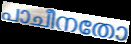
പാചീനതോ